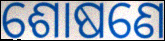
ଶୋଷଣେ